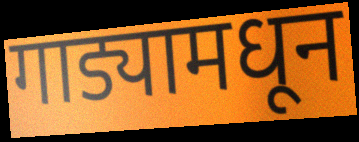
गाड्यामधून